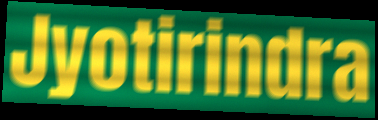
Jyotirindra